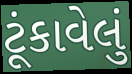
ટૂંકાવેલું